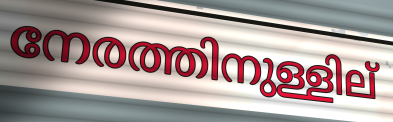
നേരത്തിനുള്ളില്